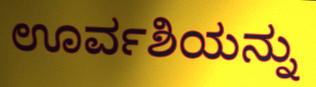
ಊರ್ವಶಿಯನ್ನು